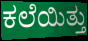
ಕಲೆಯಿತ್ತು